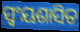
ସ୍ୱଂୟଶାସିତ